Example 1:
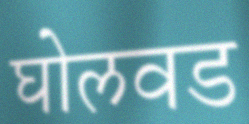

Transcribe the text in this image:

घोलवड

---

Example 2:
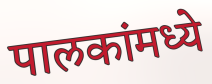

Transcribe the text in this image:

पालकांमध्ये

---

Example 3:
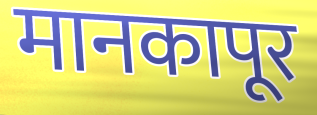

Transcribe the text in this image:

मानकापूर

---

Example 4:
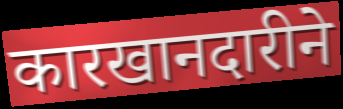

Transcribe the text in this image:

कारखानदारीने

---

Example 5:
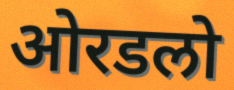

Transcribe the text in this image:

ओरडलो